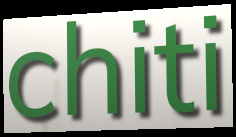
chiti